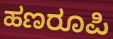
ಹಣರೂಪಿ